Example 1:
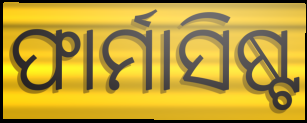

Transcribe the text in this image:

ଫାର୍ମାସିଷ୍ଟ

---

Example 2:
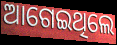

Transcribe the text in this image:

ଆଗେଇଥିଲେ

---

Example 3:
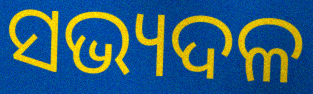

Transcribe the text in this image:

ସଭ୍ୟଦଳ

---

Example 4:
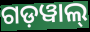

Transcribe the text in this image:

ଗଡ଼ୱାଲ୍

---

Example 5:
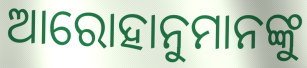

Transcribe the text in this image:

ଆରୋହାନୁମାନଙ୍କୁ